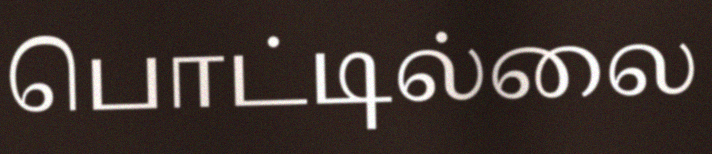
பொட்டில்லை